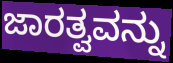
ಜಾರತ್ವವನ್ನು